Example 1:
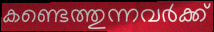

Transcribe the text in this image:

കണ്ടെത്തുന്നവർക്ക്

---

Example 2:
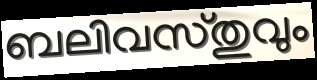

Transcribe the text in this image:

ബലിവസ്തുവും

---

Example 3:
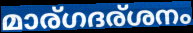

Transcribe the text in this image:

മാര്ഗദര്ശനം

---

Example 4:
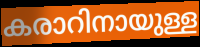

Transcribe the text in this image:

കരാറിനായുള്ള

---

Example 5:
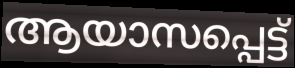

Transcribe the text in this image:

ആയാസപ്പെട്ട്